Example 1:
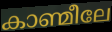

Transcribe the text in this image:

കാണ്മീലേ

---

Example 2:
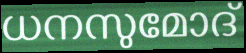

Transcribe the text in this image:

ധനസുമോദ്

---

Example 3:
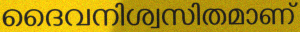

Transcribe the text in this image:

ദൈവനിശ്വസിതമാണ്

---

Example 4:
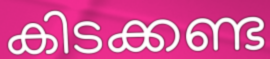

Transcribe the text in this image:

കിടക്കണ്ട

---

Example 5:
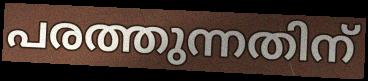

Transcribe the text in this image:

പരത്തുന്നതിന്